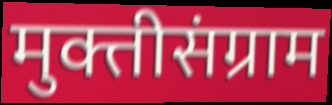
मुक्तीसंग्राम